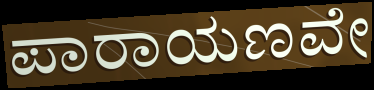
ಪಾರಾಯಣವೇ